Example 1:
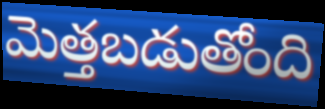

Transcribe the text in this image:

మెత్తబడుతోంది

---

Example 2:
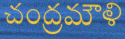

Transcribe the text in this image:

చంద్రమౌళి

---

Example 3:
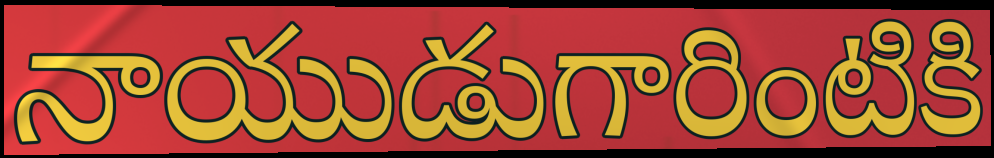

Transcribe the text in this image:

నాయుడుగారింటికి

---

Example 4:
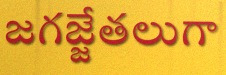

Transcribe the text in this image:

జగజ్జేతలుగా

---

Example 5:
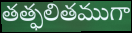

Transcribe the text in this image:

తత్ఫలితముగా